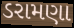
ડરામણા